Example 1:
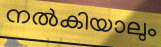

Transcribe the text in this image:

നൽകിയാലും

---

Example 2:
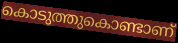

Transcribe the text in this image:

കൊടുത്തുകൊണ്ടാണ്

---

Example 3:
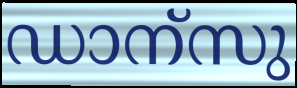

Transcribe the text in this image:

ഡാന്സു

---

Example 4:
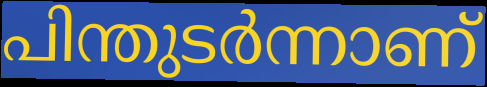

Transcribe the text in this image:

പിന്തുടർന്നാണ്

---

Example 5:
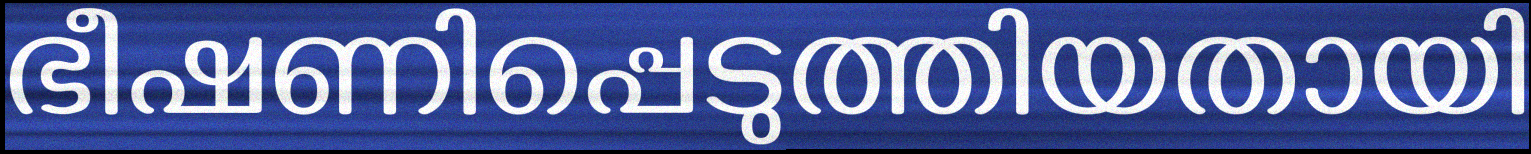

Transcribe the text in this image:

ഭീഷണിപ്പെടുത്തിയതായി